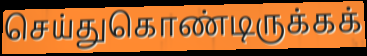
செய்துகொண்டிருக்கக்